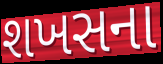
શખસના